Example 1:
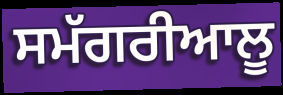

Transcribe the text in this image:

ਸਮੱਗਰੀਆਲੂ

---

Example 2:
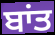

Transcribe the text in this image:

ਬਾਂਤ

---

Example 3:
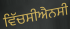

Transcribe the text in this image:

ਵਿੱਚਸੀਐਨਸੀ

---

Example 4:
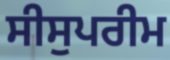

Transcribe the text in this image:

ਸੀਸੁਪਰੀਮ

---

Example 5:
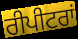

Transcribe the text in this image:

ਰੀਪੀਟਰਾਂ